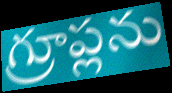
గ్రూప్లను